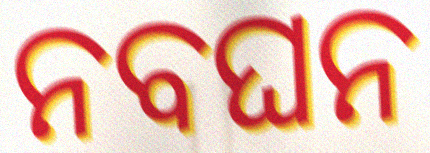
ନବଘନ